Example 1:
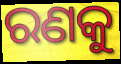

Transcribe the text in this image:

ରଣକୁ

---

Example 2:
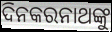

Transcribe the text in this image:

ଦିନକରନାଥଙ୍କୁ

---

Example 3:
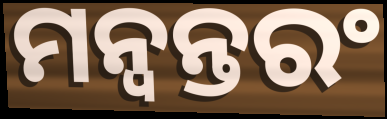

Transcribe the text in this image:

ମନ୍ବନ୍ତରଂ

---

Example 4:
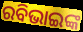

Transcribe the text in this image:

ରବିଭାଇଙ୍କ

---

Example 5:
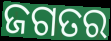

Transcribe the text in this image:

ଜଗତର